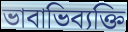
ভাবাভিব্যক্তি